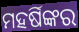
ମହର୍ଷିଙ୍କର